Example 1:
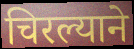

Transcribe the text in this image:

चिरल्याने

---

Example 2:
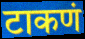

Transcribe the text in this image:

टाकणं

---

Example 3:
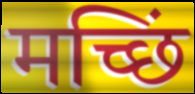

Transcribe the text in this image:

मच्छिं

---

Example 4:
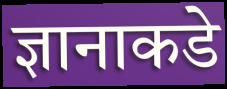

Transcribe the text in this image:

ज्ञानाकडे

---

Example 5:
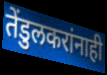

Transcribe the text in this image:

तेंडुलकरांनाही